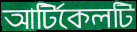
আর্টিকেলটি